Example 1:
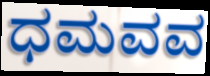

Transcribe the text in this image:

ಧಮವವ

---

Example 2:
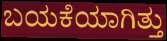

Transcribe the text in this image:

ಬಯಕೆಯಾಗಿತ್ತು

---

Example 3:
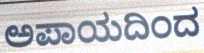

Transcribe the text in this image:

ಅಪಾಯದಿಂದ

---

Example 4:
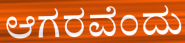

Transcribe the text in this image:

ಆಗರವೆಂದು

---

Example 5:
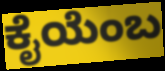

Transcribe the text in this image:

ಕೈಯೆಂಬ